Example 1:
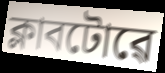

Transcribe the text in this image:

ক্লাবটোৱে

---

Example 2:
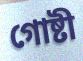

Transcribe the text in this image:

গোষ্টী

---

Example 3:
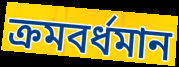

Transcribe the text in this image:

ক্ৰমবৰ্ধমান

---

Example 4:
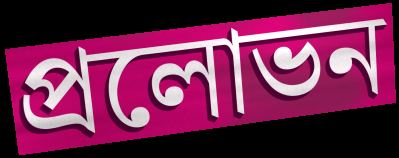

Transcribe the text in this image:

প্ৰলোভন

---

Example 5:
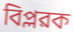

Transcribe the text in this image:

বিপ্লৱক